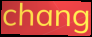
chang